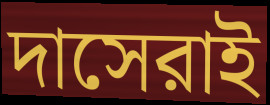
দাসেরাই